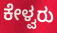
ಕೇಳ್ವರು